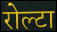
रोल्टा